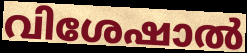
വിശേഷാൽ